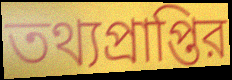
তথ্যপ্রাপ্তির